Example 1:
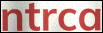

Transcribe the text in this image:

ntrca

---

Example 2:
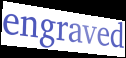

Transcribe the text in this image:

engraved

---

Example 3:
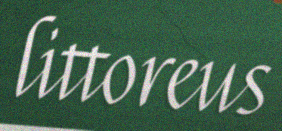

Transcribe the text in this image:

littoreus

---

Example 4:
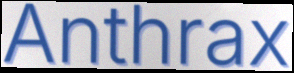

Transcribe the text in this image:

Anthrax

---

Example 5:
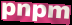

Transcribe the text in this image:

pnpm